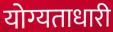
योग्यताधारी